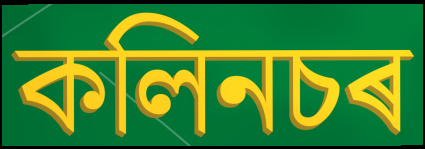
কলিনচৰ